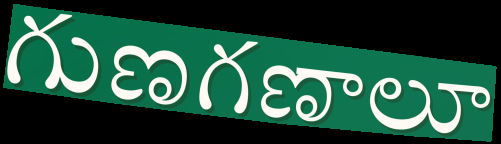
గుణగణాలూ